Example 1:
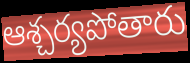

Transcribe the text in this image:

ఆశ్చర్యపోతారు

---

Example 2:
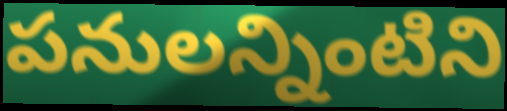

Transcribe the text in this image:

పనులన్నింటిని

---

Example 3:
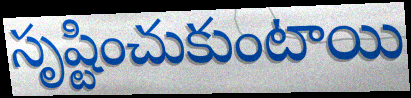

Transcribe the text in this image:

సృష్టించుకుంటాయి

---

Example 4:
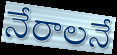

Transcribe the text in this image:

నేరాలనే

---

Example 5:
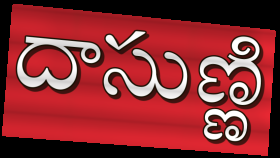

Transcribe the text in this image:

దాసుణ్ణి